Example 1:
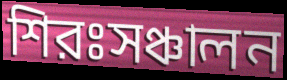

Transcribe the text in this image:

শিরঃসঞ্চালন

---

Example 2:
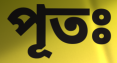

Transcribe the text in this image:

পূতঃ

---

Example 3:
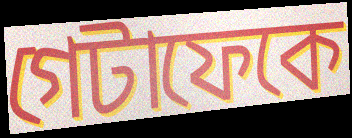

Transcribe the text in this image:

গেটাফেকে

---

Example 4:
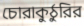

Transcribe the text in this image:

চোরাকুঠুরির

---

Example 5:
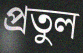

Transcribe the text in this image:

প্রতুল